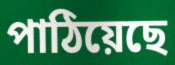
পাঠিয়েছে